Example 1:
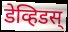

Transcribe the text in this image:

डेव्हिडस्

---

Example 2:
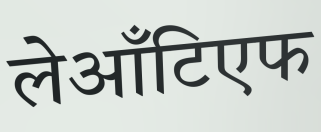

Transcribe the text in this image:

लेआँटिएफ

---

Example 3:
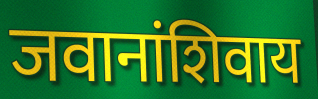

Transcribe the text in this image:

जवानांशिवाय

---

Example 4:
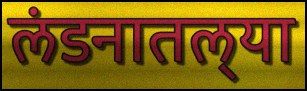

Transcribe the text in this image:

लंडनातल्या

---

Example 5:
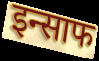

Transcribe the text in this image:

इन्साफ